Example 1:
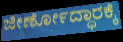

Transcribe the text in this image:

ಜೀರ್ಣೋದ್ಧಾರಕ್ಕೆ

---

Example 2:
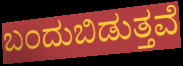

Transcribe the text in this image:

ಬಂದುಬಿಡುತ್ತವೆ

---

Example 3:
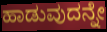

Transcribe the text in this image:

ಹಾಡುವುದನ್ನೇ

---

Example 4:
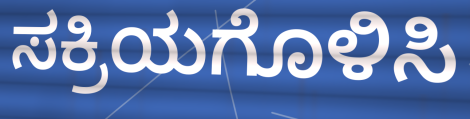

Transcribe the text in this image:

ಸಕ್ರಿಯಗೊಳಿಸಿ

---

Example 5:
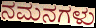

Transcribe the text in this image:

ನಮನಗಳು